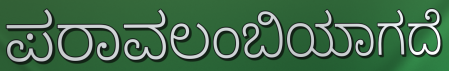
ಪರಾವಲಂಬಿಯಾಗದೆ